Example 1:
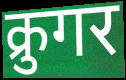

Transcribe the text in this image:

क्रुगर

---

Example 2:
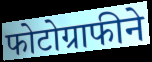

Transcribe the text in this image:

फोटोग्राफीने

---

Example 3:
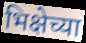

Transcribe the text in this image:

भिक्षेच्या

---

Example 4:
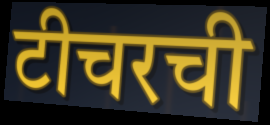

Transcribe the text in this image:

टीचरची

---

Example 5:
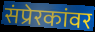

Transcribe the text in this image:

संप्रेरकांवर